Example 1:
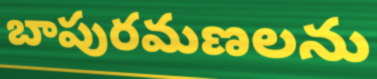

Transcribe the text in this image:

బాపురమణలను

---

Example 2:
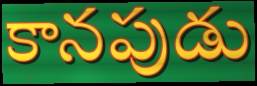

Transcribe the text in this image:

కానపుడు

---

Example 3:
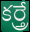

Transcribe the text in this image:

కర్త్రే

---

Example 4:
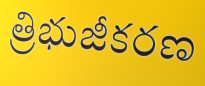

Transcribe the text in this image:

త్రిభుజీకరణ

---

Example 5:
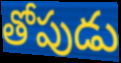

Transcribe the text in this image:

తోపుడు